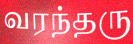
வரந்தரு